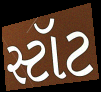
સ્ટૉટ